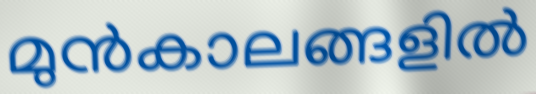
മുൻകാലങ്ങളിൽ